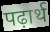
पढ़ार्थ